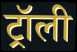
ट्रॉली